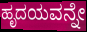
ಹೃದಯವನ್ನೇ